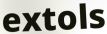
extols